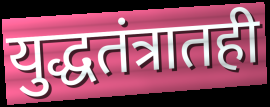
युद्धतंत्रातही